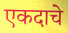
एकदाचे